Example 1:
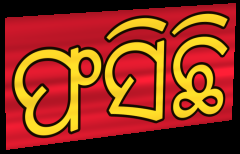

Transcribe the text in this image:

ଫସିଛି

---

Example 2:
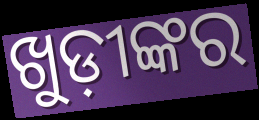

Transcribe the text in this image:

ଖୁଡ଼ୀଙ୍କର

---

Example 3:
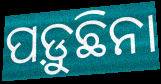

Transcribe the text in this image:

ପଡ଼ୁଛିନା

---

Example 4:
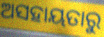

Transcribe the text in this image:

ଅସହାୟତାରୁ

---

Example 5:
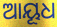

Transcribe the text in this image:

ଆୟୂଧ